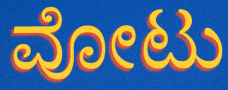
ವೋಟು